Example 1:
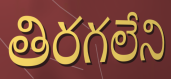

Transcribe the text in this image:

తిరగలేని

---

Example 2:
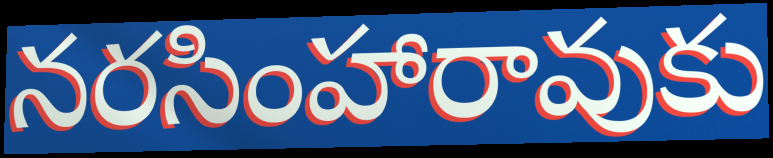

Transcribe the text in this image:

నరసింహారావుకు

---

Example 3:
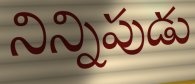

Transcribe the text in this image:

నిన్నిపుడు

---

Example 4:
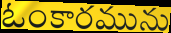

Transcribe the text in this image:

ఓంకారమును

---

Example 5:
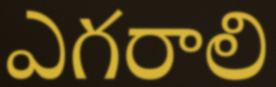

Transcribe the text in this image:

ఎగరాలి